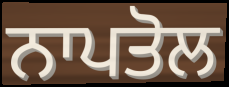
ਨਾਪਤੋਲ